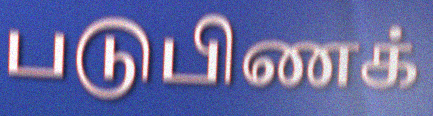
படுபிணக்